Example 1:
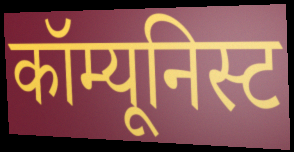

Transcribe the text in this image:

कॉम्यूनिस्ट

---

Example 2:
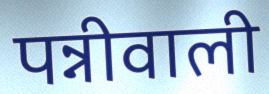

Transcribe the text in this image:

पन्नीवाली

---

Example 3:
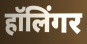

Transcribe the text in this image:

हॉलिंगर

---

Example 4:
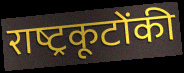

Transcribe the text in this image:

राष्ट्रकूटोंकी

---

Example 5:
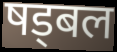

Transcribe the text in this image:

षड्बल